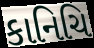
કાનિચિ